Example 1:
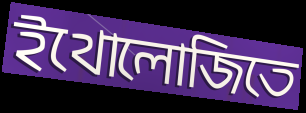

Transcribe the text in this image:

ইথোলোজিতে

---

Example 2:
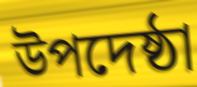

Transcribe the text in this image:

উপদেষ্ঠা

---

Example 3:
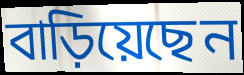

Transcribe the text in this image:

বাড়িয়েছেন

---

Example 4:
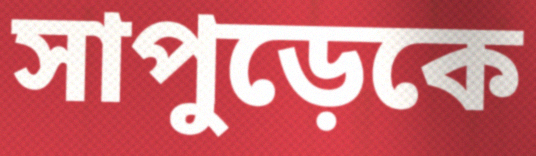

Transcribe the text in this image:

সাপুড়েকে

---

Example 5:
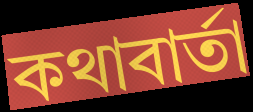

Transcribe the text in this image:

কথাবার্তা